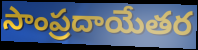
సాంప్రదాయేతర